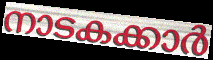
നാടകക്കാർ